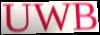
UWB